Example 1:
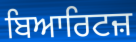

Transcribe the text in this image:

ਬਿਆਰਿਟਜ਼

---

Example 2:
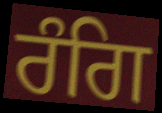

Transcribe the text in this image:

ਰੰਗਿ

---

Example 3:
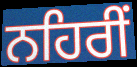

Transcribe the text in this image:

ਨਹਿਰੀਂ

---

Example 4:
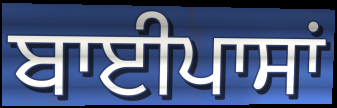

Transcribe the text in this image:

ਬਾਈਪਾਸਾਂ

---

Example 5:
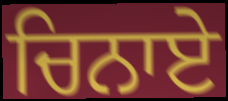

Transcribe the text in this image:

ਚਿਨਾਏ